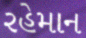
રહેમાન